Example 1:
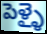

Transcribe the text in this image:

పెళ్ళై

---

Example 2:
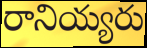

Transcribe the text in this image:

రానియ్యరు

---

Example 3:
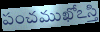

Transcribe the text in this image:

పంచముఖోఽస్తి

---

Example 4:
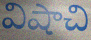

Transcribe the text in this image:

విషాచి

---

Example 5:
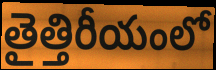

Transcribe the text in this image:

తైత్తిరీయంలో